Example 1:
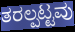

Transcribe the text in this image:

ತರಲ್ಪಟ್ಟವು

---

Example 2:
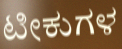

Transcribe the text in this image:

ಟೀಕುಗಳ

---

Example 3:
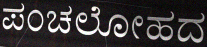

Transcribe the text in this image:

ಪಂಚಲೋಹದ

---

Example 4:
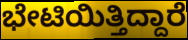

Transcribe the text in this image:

ಭೇಟಿಯಿತ್ತಿದ್ದಾರೆ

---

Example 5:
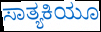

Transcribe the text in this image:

ಸಾತ್ಯಕಿಯೂ